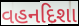
વહનદિશા